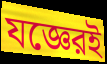
যজ্ঞেরই